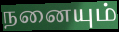
நனையும்